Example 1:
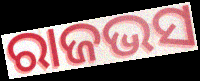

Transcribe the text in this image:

ରାଜଭସ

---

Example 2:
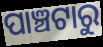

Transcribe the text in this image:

ପାଞ୍ଚଟାରୁ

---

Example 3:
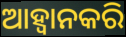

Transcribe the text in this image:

ଆହ୍ୱାନକରି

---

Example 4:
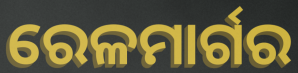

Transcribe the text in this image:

ରେଳମାର୍ଗର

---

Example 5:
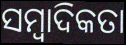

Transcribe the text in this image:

ସମ୍ବାଦିକତା